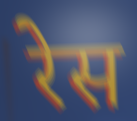
रेस